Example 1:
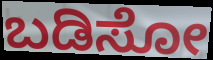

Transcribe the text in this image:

ಬಡಿಸೋ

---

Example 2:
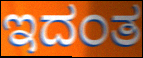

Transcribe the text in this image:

ಇದಂತ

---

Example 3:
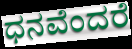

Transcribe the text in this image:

ಧನವೆಂದರೆ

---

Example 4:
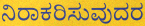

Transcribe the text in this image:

ನಿರಾಕರಿಸುವುದರ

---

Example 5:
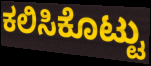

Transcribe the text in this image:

ಕಲಿಸಿಕೊಟ್ಟು